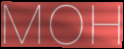
MOH